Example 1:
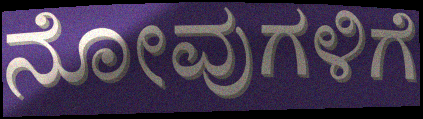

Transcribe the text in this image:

ನೋವುಗಳಿಗೆ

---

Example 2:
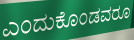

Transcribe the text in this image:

ಎಂದುಕೊಂಡವರೂ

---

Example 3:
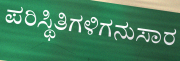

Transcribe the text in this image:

ಪರಿಸ್ಥಿತಿಗಳಿಗನುಸಾರ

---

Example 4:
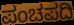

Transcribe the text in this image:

ಪಂಚಪದಿ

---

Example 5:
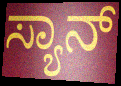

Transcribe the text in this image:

ಸ್ಯಾನ್